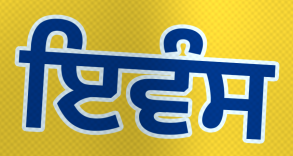
ਇਵੰਸ